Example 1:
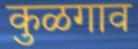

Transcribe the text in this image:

कुळगाव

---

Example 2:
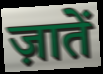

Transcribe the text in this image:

ज़ातें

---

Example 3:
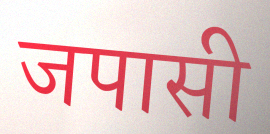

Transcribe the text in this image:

जपासी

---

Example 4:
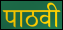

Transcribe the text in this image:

पाठवी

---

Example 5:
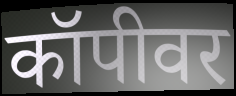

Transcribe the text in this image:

कॉपीवर